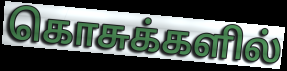
கொசுக்களில்